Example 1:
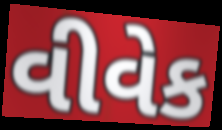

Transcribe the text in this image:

વીવેક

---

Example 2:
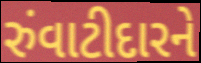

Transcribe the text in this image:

રુંવાટીદારને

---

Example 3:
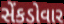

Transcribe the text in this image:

સેંકડોવાર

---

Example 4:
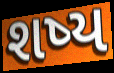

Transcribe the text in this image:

શષ્ય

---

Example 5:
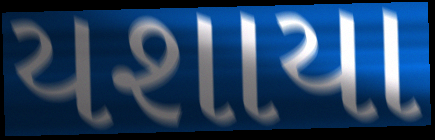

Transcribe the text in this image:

યશાયા